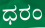
ಧರಂ